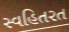
સ્વહિતરત